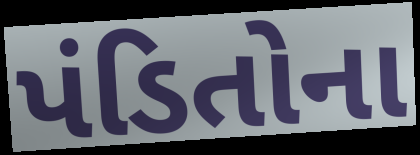
પંડિતોના